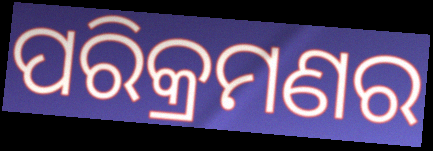
ପରିକ୍ରମଣର